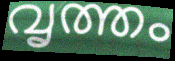
വൃത്തം